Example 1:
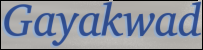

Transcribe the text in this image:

Gayakwad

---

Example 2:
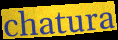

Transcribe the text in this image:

chatura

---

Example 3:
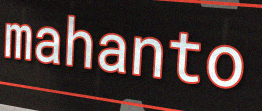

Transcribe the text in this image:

mahanto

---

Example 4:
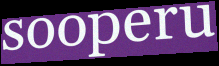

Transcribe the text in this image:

sooperu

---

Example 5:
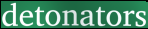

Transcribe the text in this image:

detonators